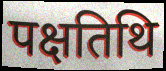
पक्षतिथि